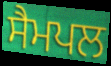
ਸੈਮਪਲ